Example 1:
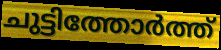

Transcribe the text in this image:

ചുട്ടിത്തോർത്ത്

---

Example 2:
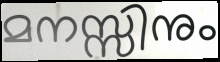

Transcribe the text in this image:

മനസ്സിനും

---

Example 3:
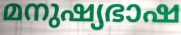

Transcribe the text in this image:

മനുഷ്യഭാഷ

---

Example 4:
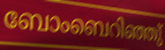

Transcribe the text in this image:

ബോംബെറിഞ്ഞു്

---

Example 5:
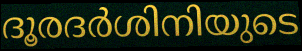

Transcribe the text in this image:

ദൂരദർശിനിയുടെ